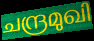
ചന്ദ്രമുഖി